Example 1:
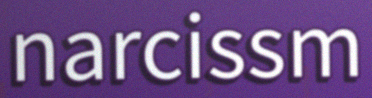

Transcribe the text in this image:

narcissm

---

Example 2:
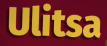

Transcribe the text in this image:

Ulitsa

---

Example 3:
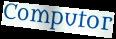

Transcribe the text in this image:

Computor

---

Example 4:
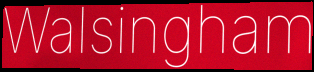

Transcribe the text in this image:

Walsingham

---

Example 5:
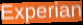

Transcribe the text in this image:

Experian